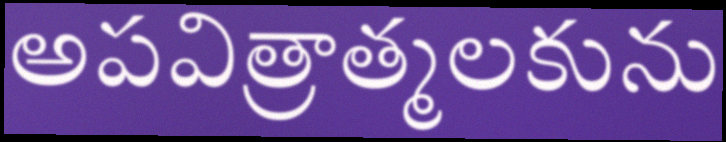
అపవిత్రాత్మలకును